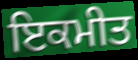
ਇਕਮੀਤ